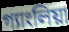
গ্যাংলিয়া